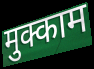
मुक्काम